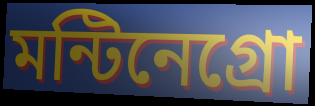
মন্টিনেগ্রো